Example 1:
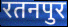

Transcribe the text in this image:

रतनपुर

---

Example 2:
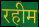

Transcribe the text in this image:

रहीम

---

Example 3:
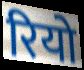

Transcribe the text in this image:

रियो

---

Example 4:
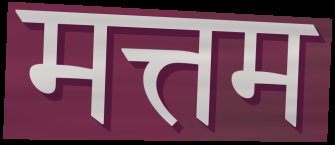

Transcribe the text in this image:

मत्तम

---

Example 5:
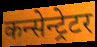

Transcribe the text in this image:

कन्सेन्ट्रेटर